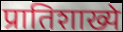
प्रातिशाख्ये